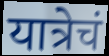
यात्रेचं